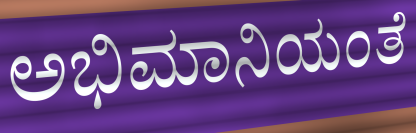
ಅಭಿಮಾನಿಯಂತೆ